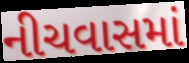
નીચવાસમાં